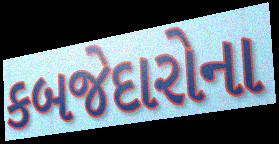
કબજેદારોના